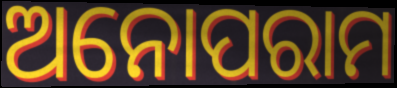
ଅନୋପରାମ